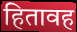
हितावह